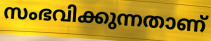
സംഭവിക്കുന്നതാണ്